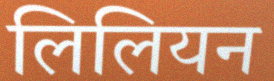
लिलियन